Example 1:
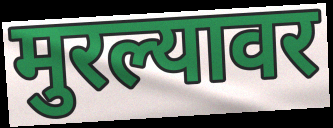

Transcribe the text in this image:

मुरल्यावर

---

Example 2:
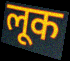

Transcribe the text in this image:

लूक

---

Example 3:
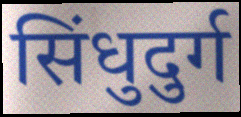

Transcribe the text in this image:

सिंधुदुर्ग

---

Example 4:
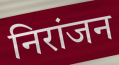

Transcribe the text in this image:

निरांजन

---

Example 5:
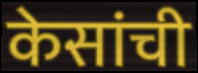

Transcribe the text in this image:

केसांची